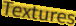
Textures